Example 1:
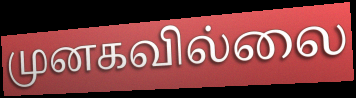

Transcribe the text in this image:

முனகவில்லை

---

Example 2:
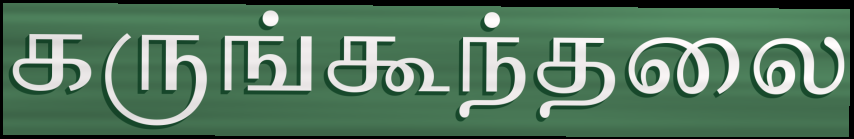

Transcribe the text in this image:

கருங்கூந்தலை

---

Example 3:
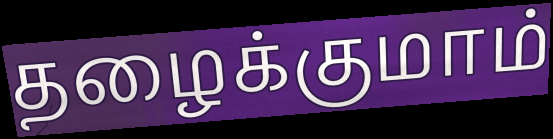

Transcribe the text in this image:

தழைக்குமாம்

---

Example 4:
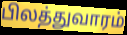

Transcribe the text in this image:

பிலத்துவாரம்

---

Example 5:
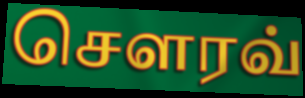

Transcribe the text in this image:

சௌரவ்